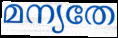
മന്യതേ